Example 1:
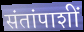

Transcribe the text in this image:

संतांपाशीं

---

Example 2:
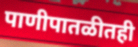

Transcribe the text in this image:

पाणीपातळीतही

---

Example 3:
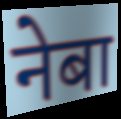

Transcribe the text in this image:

नेबा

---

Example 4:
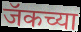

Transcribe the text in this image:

जॅकच्या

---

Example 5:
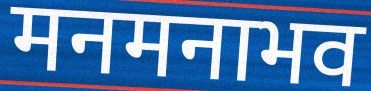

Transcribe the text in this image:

मनमनाभव